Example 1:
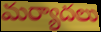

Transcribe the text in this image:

మర్యాదలు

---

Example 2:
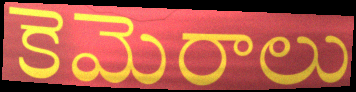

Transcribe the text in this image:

కెమెరాలు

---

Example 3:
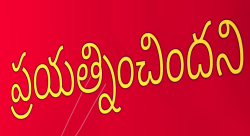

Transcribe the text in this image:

ప్రయత్నించిందని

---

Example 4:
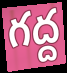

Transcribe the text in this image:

గద్ద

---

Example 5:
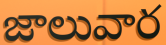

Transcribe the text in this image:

జాలువార